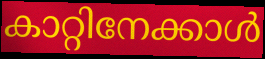
കാറ്റിനേക്കാൾ